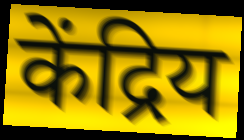
केंद्रिय